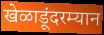
खेळाडूंदरम्यान